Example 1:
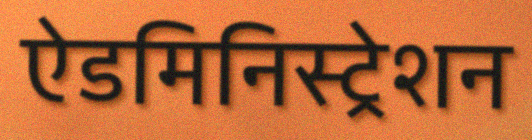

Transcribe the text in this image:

ऐडमिनिस्ट्रेशन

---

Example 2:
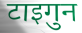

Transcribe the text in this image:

टाइगुन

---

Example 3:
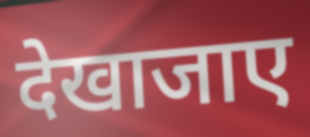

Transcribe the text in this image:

देखाजाए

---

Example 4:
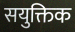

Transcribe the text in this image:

सयुक्तिक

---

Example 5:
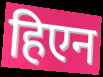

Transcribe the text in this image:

हिएन